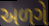
અળગે